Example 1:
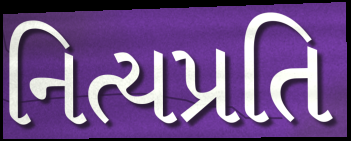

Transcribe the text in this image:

નિત્યપ્રતિ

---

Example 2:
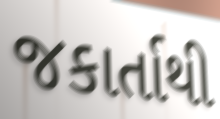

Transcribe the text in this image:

જકાર્તાથી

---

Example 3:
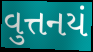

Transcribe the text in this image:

વુત્તનયં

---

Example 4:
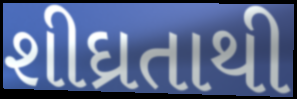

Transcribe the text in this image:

શીઘ્રતાથી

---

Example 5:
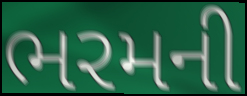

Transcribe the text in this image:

ભરમની